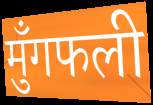
मुँगफली